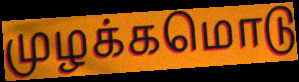
முழக்கமொடு